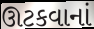
ઊટકવાનાં